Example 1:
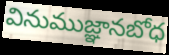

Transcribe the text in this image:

వినుముజ్ఞానబోధ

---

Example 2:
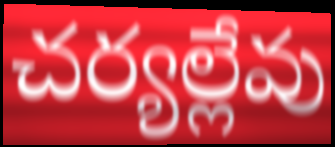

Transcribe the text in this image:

చర్యల్లేవు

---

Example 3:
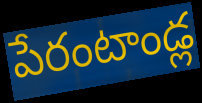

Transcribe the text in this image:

పేరంటాండ్ల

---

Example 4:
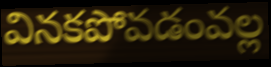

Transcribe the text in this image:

వినకపోవడంవల్ల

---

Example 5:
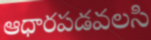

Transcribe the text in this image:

ఆధారపడవలసి